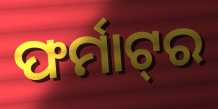
ଫର୍ମାଟ୍‌ର